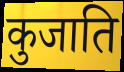
कुजाति